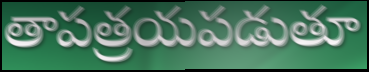
తాపత్రయపడుతూ